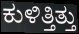
ಕುಳಿತ್ತಿತ್ತು